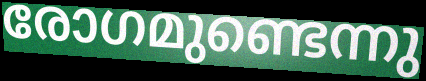
രോഗമുണ്ടെന്നു